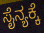
ಸೈನ್ಯಕ್ಕೆ